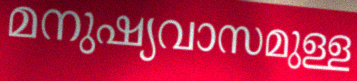
മനുഷ്യവാസമുള്ള